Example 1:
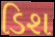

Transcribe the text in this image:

ડિશ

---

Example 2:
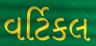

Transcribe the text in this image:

વર્ટિકલ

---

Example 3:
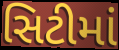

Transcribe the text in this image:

સિટીમાં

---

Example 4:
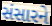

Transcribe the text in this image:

સંસારને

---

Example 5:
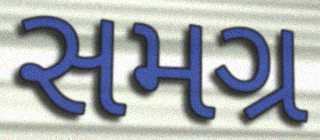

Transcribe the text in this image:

સમગ્ર